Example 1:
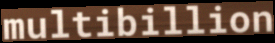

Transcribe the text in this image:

multibillion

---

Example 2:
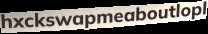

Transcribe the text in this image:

hxckswapmeaboutlopl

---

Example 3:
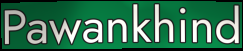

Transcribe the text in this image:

Pawankhind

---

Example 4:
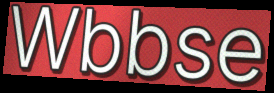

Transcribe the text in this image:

Wbbse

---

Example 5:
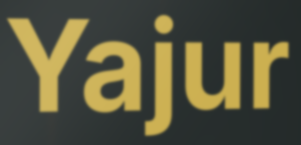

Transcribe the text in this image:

Yajur